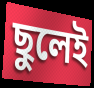
ছুলেই